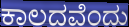
ಕಾಲದವೆಂದು